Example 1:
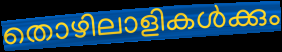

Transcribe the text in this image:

തൊഴിലാളികൾക്കും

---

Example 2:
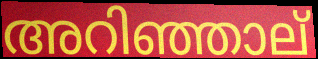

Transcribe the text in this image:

അറിഞ്ഞാല്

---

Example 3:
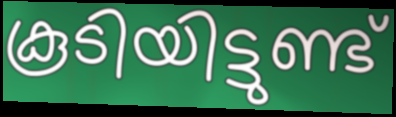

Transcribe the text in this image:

കൂടിയിട്ടുണ്ട്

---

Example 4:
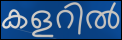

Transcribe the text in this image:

കളറിൽ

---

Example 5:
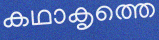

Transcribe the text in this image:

കഥാകൃത്തെ